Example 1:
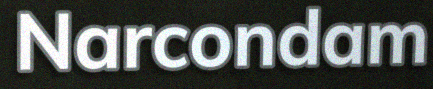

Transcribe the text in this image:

Narcondam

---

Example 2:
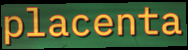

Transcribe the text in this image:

placenta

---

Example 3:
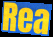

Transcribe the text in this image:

Rea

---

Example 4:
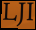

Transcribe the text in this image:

LJI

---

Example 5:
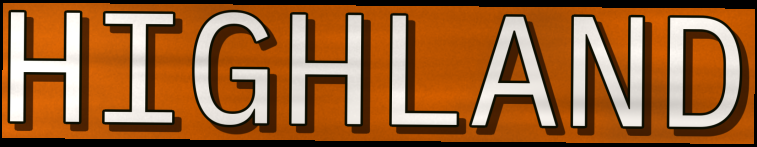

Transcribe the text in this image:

HIGHLAND